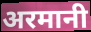
अरमानी